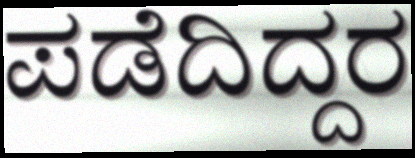
ಪಡೆದಿದ್ದರ